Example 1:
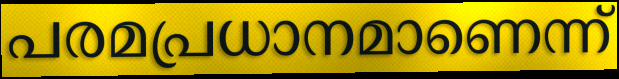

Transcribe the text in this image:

പരമപ്രധാനമാണെന്ന്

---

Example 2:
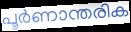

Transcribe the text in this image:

പൂർണാന്തരിക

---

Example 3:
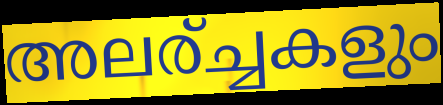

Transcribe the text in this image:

അലര്ച്ചകളും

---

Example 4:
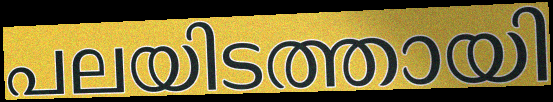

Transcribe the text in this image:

പലയിടത്തായി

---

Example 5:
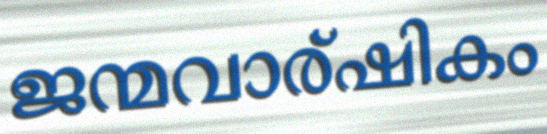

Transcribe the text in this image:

ജന്മവാര്ഷികം